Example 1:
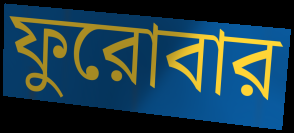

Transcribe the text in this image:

ফুরোবার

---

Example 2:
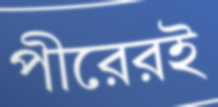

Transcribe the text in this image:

পীরেরই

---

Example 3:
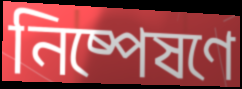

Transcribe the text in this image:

নিষ্পেষণে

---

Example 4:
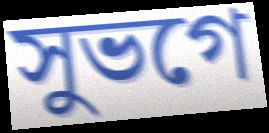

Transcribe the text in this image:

সুভগে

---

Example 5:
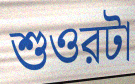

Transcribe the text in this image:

শুওরটা